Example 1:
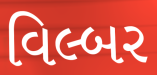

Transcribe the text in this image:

વિલ્બર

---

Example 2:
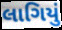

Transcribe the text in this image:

લાગિયું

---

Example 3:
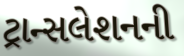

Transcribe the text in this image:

ટ્રાન્સલેશનની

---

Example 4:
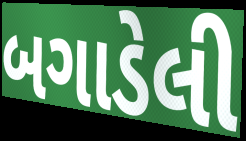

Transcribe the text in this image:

બગાડેલી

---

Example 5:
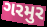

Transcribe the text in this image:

ગરમુર